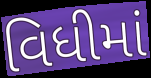
વિધીમાં